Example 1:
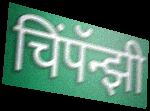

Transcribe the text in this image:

चिंपॅन्झी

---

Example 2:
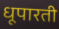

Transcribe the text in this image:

धूपारती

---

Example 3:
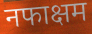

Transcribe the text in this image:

नफाक्षम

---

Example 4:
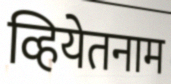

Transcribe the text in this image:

व्हियेतनाम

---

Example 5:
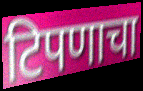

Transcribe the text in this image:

टिपणाचा